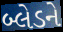
બ્લેડને